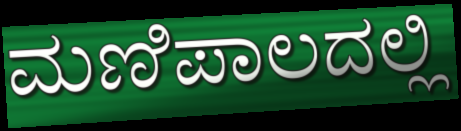
ಮಣಿಪಾಲದಲ್ಲಿ